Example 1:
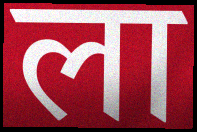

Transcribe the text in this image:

ला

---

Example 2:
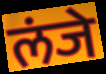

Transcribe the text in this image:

लंजे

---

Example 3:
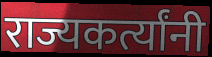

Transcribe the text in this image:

राज्यकर्त्यांनी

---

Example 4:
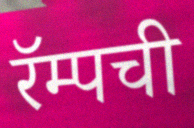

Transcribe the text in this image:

रॅम्पची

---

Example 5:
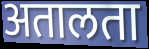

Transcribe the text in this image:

अतालता